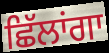
ਛਿੱਲਾਂਗਾ